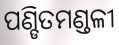
ପଣ୍ଡିତମଣ୍ଡଳୀ